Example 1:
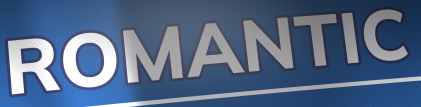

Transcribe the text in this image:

ROMANTIC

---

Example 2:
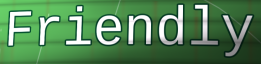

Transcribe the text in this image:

Friendly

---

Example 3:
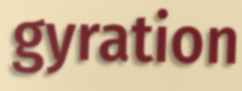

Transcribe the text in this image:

gyration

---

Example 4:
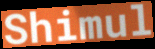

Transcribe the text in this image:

Shimul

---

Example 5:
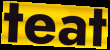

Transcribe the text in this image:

teat